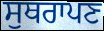
ਸੁਥਰਾਪਣ